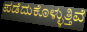
ಪಡೆದುಕೊಳ್ಳುತ್ತಿವೆ